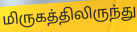
மிருகத்திலிருந்து